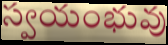
స్వయంభువు